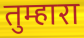
तुम्हारा